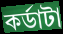
কর্ডাটা